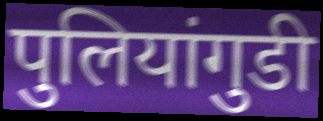
पुलियांगुडी